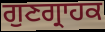
ਗੁਣਗ੍ਰਾਹਕ